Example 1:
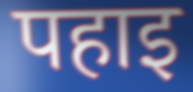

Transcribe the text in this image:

पहाइ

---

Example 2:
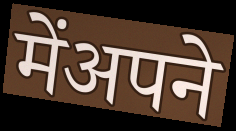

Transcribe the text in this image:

मेंअपने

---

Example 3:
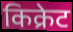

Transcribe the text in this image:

किक्रेट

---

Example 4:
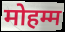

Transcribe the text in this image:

मोहम्म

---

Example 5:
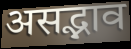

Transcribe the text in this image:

असद्भाव